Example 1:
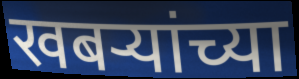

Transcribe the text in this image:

खबऱ्यांच्या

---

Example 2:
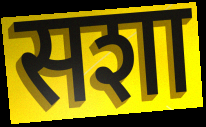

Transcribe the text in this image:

सशा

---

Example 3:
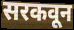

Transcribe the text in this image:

सरकवून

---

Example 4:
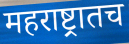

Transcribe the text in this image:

महराष्ट्रातच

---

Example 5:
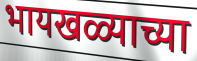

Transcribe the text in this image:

भायखळ्याच्या